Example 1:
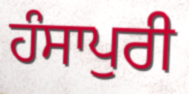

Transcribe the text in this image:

ਹੰਸਾਪੁਰੀ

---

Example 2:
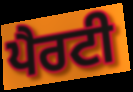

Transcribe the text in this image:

ਪੈਰਟੀ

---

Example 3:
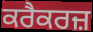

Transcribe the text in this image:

ਕਰੈਕਰਜ਼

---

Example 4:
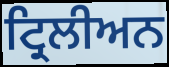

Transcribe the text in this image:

ਟ੍ਰਿਲੀਅਨ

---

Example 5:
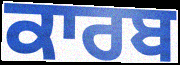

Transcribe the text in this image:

ਕਾਰਬ